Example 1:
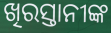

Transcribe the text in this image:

ଖିରସ୍ତାନୀଙ୍କ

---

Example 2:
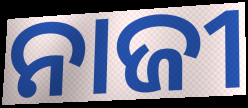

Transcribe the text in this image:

ନାଜୀ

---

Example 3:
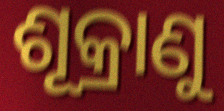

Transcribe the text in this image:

ଶୂକ୍ରାଣୁ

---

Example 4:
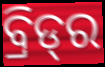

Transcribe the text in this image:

ବ୍ରିଡ୍‌ର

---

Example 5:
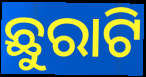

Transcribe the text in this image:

ଛୁରାଟି